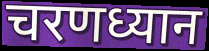
चरणध्यान